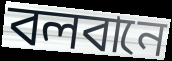
বলবানে